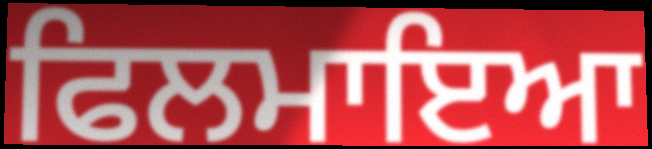
ਫਿਲਮਾਇਆ